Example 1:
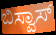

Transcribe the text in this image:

ಬಿಸ್ವಾಸ್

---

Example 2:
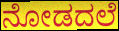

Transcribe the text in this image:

ನೋಡದಲೆ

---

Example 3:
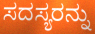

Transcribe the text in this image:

ಸದಸ್ಯರನ್ನು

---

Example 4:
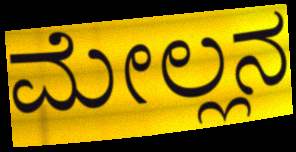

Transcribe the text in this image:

ಮೇಲ್ಲನ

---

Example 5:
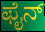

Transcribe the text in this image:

ಫೈನ್